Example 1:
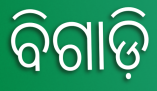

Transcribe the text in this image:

ବିଗାଡ଼ି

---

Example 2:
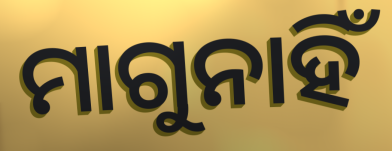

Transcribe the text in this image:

ମାଗୁନାହିଁ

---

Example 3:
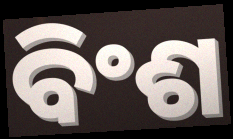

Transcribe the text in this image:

ବିଂଶ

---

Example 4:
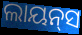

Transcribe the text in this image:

ଲାୟନ୍‌ସ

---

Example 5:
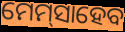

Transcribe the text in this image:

ମେମ୍‌ସାହେବ